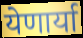
येणार्या